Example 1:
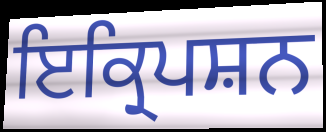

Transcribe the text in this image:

ਇਕ੍ਰਿਪਸ਼ਨ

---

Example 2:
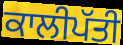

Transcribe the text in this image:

ਕਾਲੀਪੱਤੀ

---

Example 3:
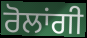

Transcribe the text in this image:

ਰੋਲਾਂਗੀ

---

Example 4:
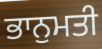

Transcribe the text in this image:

ਭਾਨੁਮਤੀ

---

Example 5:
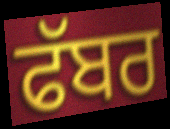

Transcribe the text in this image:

ਫੱਬਰ